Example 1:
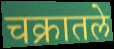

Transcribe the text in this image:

चक्रातले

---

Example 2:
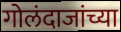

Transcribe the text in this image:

गोलंदाजांच्या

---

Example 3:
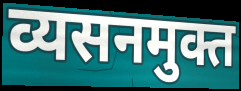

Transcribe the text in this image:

व्यसनमुक्त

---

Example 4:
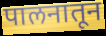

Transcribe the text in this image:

पालनातून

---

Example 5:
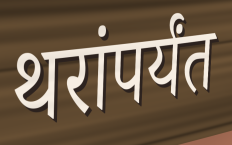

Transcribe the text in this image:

थरांपर्यंत